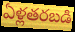
ఏళ్లతరబడి